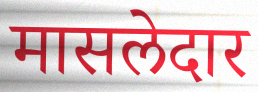
मासलेदार